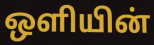
ஒளியின்